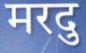
मरदु